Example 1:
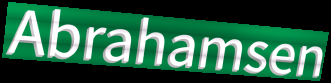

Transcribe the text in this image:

Abrahamsen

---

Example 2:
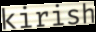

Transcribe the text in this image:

kirish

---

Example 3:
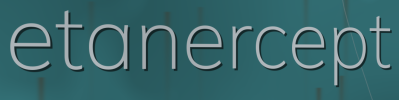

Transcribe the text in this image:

etanercept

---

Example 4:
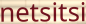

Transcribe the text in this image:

netsitsi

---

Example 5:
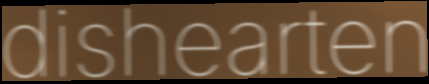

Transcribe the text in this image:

dishearten